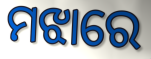
ମଝାରେ